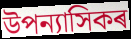
উপন্যাসিকৰ